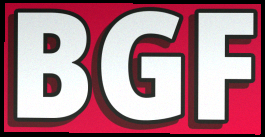
BGF